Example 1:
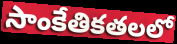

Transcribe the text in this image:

సాంకేతికతలలో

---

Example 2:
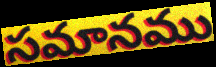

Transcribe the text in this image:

సమానము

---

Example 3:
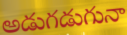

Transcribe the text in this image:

అడుగడుగునా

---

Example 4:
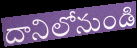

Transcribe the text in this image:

దానిలోనుండి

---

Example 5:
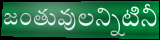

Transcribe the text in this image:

జంతువులన్నిటినీ